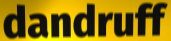
dandruff